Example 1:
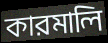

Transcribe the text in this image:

কারমালি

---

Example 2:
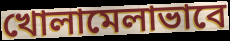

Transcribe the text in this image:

খোলামেলাভাবে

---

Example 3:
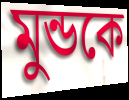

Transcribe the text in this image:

মুন্ডকে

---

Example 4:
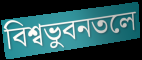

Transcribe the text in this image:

বিশ্বভুবনতলে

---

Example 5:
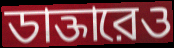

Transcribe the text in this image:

ডাক্তারেও